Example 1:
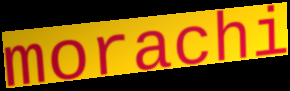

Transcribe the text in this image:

morachi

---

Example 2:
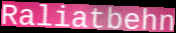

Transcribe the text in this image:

Raliatbehn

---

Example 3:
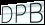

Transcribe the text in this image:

DPB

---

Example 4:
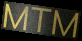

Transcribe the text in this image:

MTM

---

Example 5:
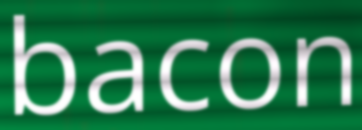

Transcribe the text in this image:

bacon